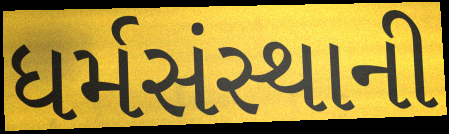
ધર્મસંસ્થાની